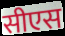
सीएस